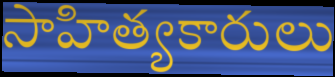
సాహిత్యకారులు